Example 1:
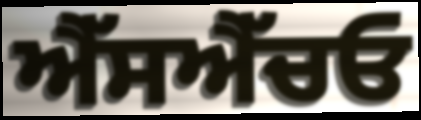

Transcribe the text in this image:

ਐੱਸਐੱਚਓ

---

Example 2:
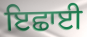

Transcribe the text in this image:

ਇਛਾਈ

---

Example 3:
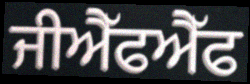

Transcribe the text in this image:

ਜੀਐੱਫਐੱਫ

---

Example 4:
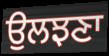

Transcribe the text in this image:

ਉਲਝਣਾ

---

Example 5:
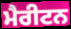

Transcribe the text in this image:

ਮੈਰੀਟਨ